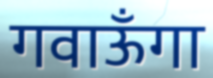
गवाऊँगा